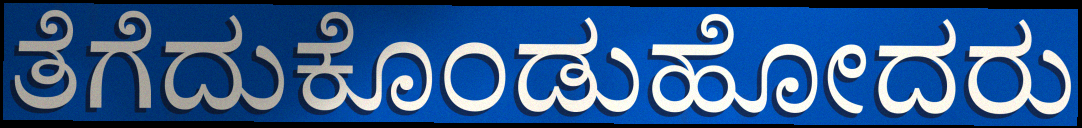
ತೆಗೆದುಕೊಂಡುಹೋದರು